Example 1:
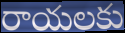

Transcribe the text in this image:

రాయలకు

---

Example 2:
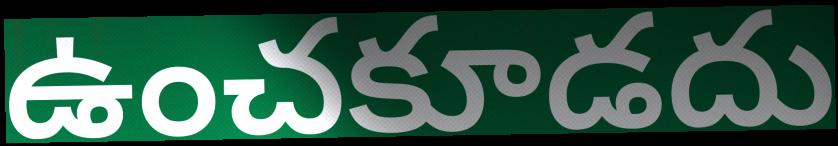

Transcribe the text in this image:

ఉంచకూడదు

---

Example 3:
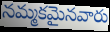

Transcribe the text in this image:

నమ్మకమైనవారు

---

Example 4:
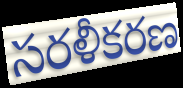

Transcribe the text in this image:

సరళీకరణ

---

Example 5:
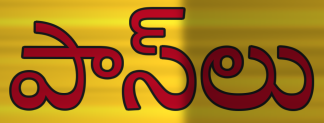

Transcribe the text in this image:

పాస్‌లు